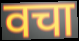
वचा